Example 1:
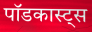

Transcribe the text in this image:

पॉडकास्ट्स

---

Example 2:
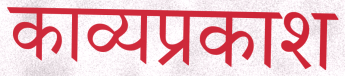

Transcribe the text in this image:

काव्यप्रकाश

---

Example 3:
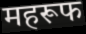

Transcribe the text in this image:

महरूफ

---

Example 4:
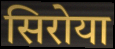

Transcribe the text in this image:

सिरोया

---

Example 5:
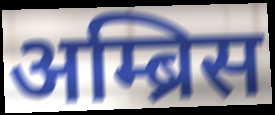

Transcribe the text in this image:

अम्ब्रिस